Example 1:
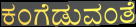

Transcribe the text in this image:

ಕಂಗೆಡುವಂತೆ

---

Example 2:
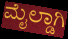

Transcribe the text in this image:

ಮೈಲ್ಡಾಗಿ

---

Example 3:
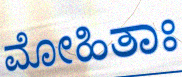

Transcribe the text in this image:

ಮೋಹಿತಾಃ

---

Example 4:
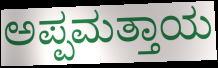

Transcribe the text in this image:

ಅಪ್ಪಮತ್ತಾಯ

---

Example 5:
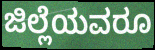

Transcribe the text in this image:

ಜಿಲ್ಲೆಯವರೂ